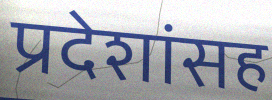
प्रदेशांसह